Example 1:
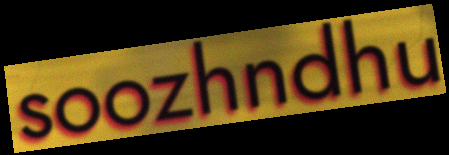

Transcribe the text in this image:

soozhndhu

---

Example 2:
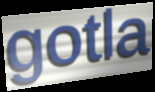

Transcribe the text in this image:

gotla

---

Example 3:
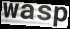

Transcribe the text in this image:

wasp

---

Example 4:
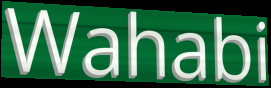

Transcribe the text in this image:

Wahabi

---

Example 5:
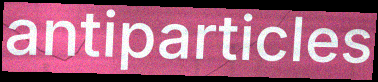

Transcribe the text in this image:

antiparticles